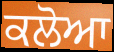
ਕਲੋਆ